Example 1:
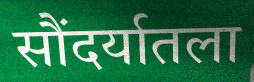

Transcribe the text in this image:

सौंदर्यातला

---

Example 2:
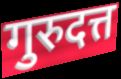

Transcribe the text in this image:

गुरुदत्त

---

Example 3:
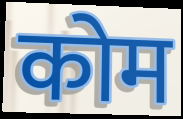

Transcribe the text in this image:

कोम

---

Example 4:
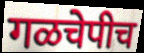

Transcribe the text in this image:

गळचेपीच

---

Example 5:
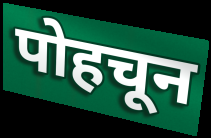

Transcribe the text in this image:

पोहचून